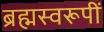
ब्रह्मस्वरूपीं